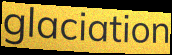
glaciation